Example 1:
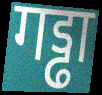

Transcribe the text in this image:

गड्ढा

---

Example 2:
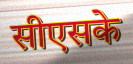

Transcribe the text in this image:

सीएसके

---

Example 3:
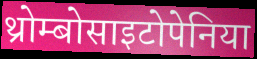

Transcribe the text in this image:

थ्रोम्बोसाइटोपेनिया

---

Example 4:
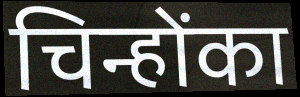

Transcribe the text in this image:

चिन्होंका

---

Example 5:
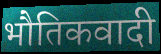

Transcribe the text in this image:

भौतिकवादी